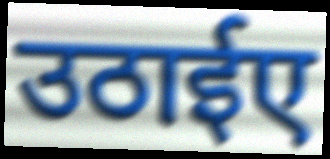
उठाईए